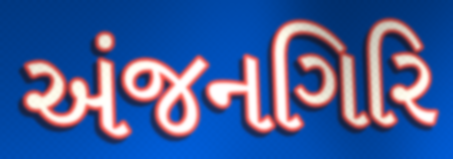
અંજનગિરિ